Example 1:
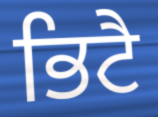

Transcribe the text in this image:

ਭਿਟੈ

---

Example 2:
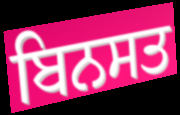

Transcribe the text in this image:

ਬਿਨਸਤ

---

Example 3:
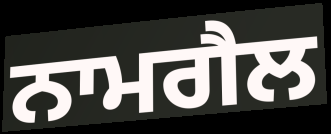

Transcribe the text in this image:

ਨਾਮਗੈਲ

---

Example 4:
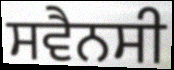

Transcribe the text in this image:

ਸਵੈਨਸੀ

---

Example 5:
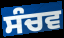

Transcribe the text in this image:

ਸੰਚਵ